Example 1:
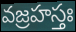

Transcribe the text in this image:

వజ్రహస్తః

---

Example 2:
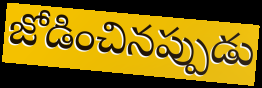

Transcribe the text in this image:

జోడించినప్పుడు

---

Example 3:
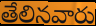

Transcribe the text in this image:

తేలినవారు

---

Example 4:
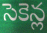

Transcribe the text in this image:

సెకెన్ల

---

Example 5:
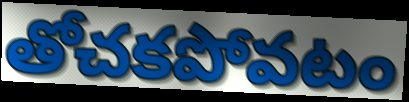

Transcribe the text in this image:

తోచకపోవటం